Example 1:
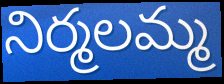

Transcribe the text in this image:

నిర్మలమ్మ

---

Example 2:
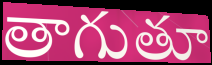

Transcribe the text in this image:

తాగుతూ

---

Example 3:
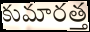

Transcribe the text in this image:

కుమారత్త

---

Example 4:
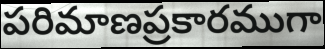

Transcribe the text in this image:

పరిమాణప్రకారముగా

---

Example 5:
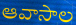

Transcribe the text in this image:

ఆవాసాల